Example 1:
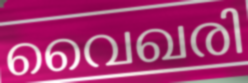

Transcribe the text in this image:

വൈഖരി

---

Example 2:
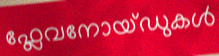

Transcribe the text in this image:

ഫ്ലേവനോയ്ഡുകൾ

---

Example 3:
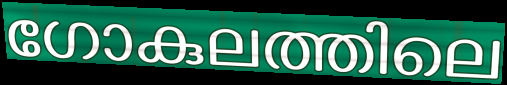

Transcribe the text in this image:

ഗോകുലത്തിലെ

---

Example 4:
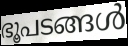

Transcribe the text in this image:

ഭൂപടങ്ങൾ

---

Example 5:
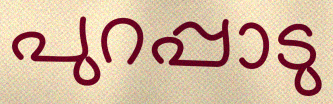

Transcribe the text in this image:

പുറപ്പാടു